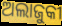
ଅଲାଜୁକୀ